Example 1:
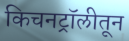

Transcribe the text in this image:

किचनट्रॉलीतून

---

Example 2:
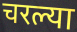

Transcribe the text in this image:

चरल्या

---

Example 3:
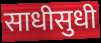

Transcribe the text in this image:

साधीसुधी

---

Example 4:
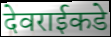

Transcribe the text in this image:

देवराईकडे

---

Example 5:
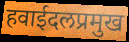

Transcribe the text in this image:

हवाईदलप्रमुख